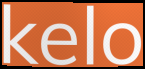
kelo